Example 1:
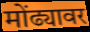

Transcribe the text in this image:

मोंढ्यावर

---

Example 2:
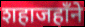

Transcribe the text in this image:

शहाजहाँने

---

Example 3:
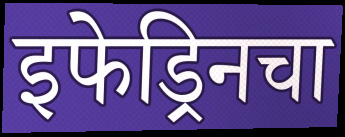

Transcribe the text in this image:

इफेड्रिनचा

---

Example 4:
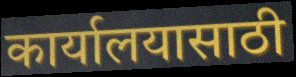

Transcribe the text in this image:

कार्यालयासाठी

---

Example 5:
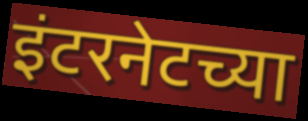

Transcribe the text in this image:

इंटरनेटच्या